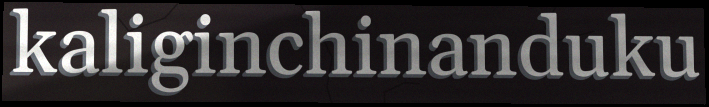
kaliginchinanduku